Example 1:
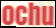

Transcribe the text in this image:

ochu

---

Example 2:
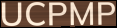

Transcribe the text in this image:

UCPMP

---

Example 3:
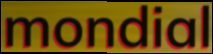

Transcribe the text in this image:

mondial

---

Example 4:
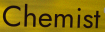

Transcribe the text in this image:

Chemist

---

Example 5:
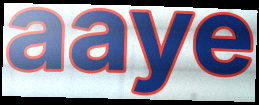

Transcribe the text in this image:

aaye